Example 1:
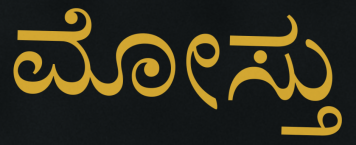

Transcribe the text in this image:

ಮೋಸ್ತು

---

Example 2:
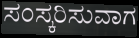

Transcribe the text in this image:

ಸಂಸ್ಕರಿಸುವಾಗ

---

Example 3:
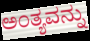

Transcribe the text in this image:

ಅಂತ್ಯವನ್ನು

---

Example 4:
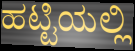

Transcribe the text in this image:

ಹಟ್ಟಿಯಲ್ಲಿ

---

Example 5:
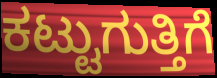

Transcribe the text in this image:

ಕಟ್ಟುಗುತ್ತಿಗೆ